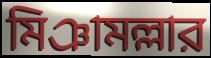
মিঞামল্লার